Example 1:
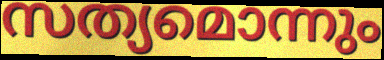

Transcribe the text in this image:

സത്യമൊന്നും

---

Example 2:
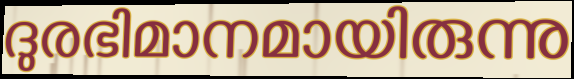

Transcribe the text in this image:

ദുരഭിമാനമായിരുന്നു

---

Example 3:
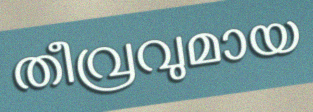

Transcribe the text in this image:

തീവ്രവുമായ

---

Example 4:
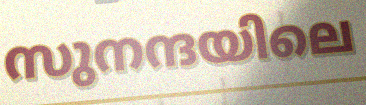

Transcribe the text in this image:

സുനന്ദയിലെ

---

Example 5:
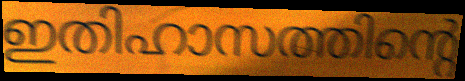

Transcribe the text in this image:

ഇതിഹാസത്തിന്റെ